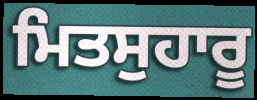
ਮਿਤਸੁਹਾਰੂ